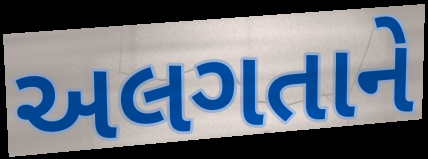
અલગતાને